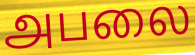
அபலை